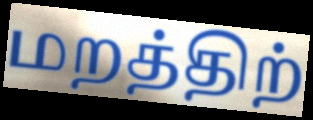
மறத்திற்